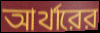
আর্থারের